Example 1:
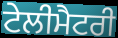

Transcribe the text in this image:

ਟੇਲੀਮੈਟਰੀ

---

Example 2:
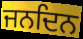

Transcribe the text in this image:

ਜਨਦਿਨ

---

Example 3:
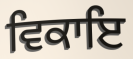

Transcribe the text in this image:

ਵਿਕਾਇ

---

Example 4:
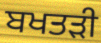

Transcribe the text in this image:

ਬਖਤੜੀ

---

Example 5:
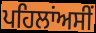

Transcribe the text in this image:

ਪਹਿਲਾਂਅਸੀਂ